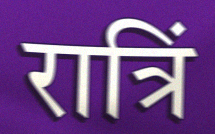
रात्रिं